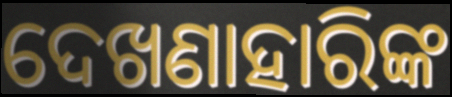
ଦେଖଣାହାରିଙ୍କ